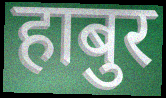
हाबुर